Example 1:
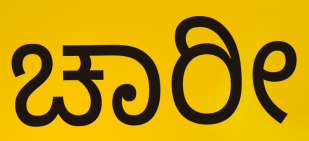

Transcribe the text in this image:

ಚಾರೀ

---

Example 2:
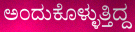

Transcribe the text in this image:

ಅಂದುಕೊಳ್ಳುತ್ತಿದ್ದ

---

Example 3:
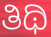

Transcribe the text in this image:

ತಿಥಿ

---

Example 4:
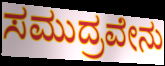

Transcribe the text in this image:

ಸಮುದ್ರವೇನು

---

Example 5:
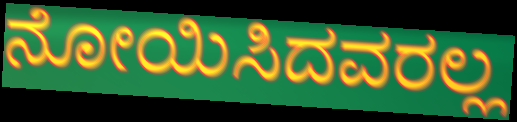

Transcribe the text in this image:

ನೋಯಿಸಿದವರಲ್ಲ